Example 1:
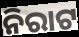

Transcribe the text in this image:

ନିରାଟ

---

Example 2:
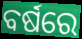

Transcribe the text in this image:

ବର୍ଷରେ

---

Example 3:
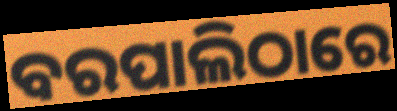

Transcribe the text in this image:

ବରପାଲିଠାରେ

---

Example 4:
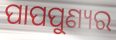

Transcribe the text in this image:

ପାପପୁଣ୍ୟର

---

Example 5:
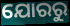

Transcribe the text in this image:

ଯୋରରୁ